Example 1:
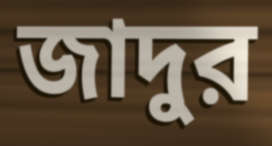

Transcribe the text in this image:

জাদুর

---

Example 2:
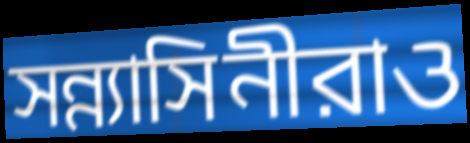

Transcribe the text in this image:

সন্ন্যাসিনীরাও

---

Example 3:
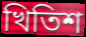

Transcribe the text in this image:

খিতিশ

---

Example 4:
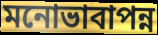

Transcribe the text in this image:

মনোভাবাপন্ন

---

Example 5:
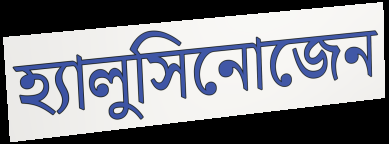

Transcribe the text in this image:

হ্যালুসিনোজেন